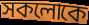
সকলোকে